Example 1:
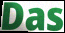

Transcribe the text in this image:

Das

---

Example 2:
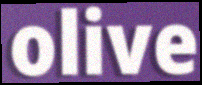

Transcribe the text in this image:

olive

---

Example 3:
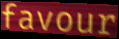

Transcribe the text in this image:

favour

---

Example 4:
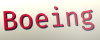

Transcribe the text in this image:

Boeing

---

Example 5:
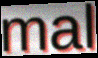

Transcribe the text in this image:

mal